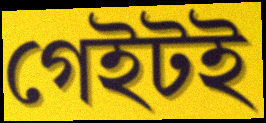
গেইটই